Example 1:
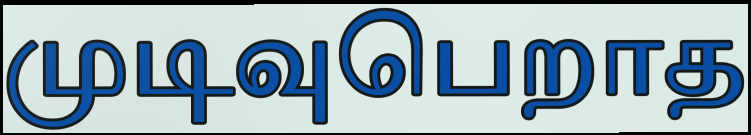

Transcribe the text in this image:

முடிவுபெறாத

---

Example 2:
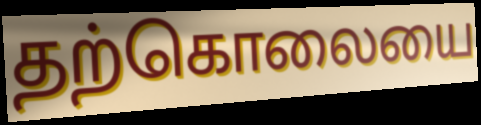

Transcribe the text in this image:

தற்கொலையை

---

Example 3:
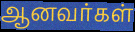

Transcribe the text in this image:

ஆனவர்கள்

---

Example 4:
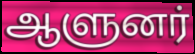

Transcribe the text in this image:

ஆளுனர்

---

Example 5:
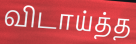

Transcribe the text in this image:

விடாய்த்த